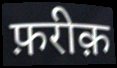
फ़रीक़